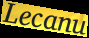
Lecanu